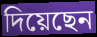
দিয়েছেন